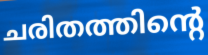
ചരിതത്തിന്റെ